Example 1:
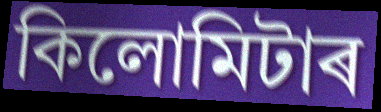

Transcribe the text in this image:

কিলোমিটাৰ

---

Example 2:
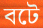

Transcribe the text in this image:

বটে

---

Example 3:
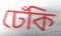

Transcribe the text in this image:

ঢেঁকি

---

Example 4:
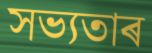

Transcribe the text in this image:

সভ্যতাৰ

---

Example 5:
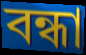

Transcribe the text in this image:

বন্ধা